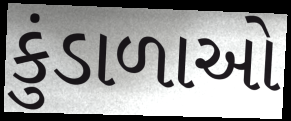
કુંડાળાઓ